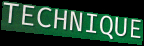
TECHNIQUE